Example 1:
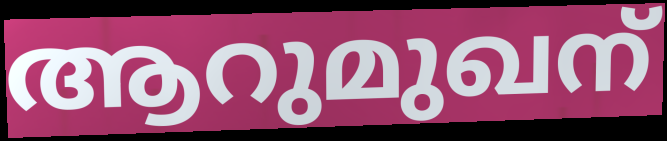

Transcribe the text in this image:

ആറുമുഖന്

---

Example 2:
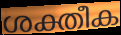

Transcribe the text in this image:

ശക്തീക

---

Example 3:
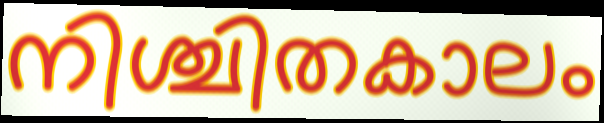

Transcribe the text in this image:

നിശ്ചിതകാലം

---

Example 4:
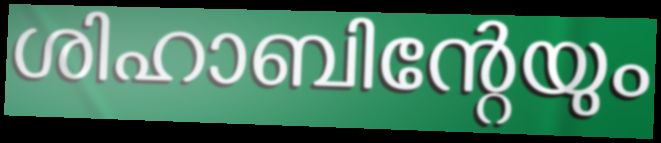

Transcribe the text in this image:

ശിഹാബിന്റേയും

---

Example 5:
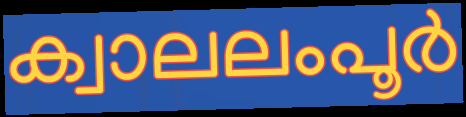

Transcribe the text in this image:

ക്വാലലംപൂർ